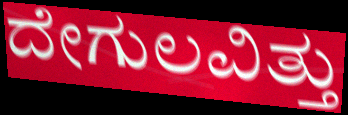
ದೇಗುಲವಿತ್ತು